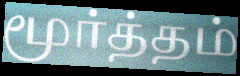
மூர்த்தம்